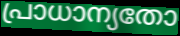
പ്രാധാന്യതോ